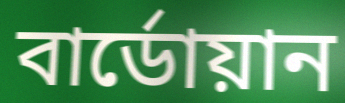
বার্ডোয়ান